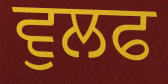
ਵੁਲਫ